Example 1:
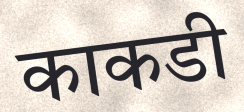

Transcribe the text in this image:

काकडी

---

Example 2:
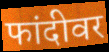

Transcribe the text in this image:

फांदीवर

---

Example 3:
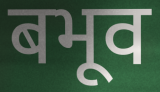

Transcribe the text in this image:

बभूव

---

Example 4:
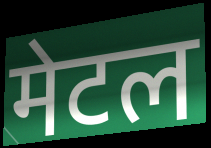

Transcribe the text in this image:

मेटल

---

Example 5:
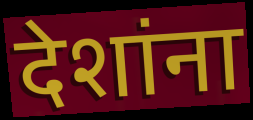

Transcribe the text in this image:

देशांना